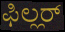
ಫಿಲ್ಲರ್